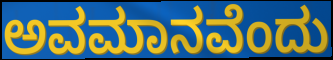
ಅವಮಾನವೆಂದು